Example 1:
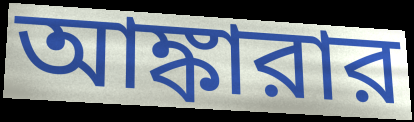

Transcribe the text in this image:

আঙ্কারার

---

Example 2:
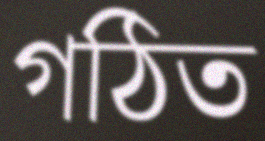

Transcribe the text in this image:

গঠিত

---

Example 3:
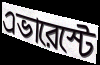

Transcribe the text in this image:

এভারেস্টে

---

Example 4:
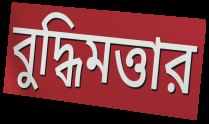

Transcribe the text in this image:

বুদ্ধিমত্তার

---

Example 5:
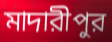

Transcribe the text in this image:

মাদারীপুর